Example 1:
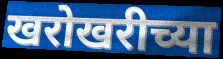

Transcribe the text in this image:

खरोखरीच्या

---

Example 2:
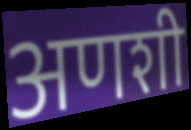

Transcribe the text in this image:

अणशी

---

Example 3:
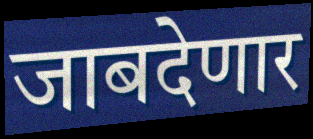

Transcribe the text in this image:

जाबदेणार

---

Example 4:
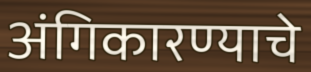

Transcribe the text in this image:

अंगिकारण्याचे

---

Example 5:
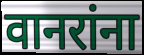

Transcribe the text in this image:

वानरांना